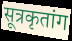
सूत्रकृतांग